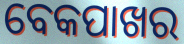
ବେକପାଖର